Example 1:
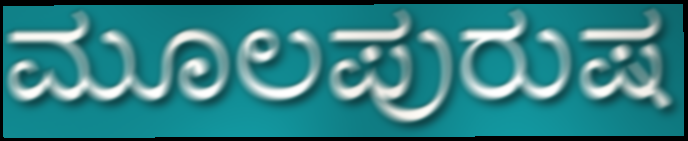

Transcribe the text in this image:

ಮೂಲಪುರುಷ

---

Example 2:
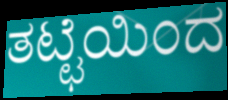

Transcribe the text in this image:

ತಟ್ಟೆಯಿಂದ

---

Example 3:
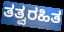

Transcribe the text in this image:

ತತ್ವರಹಿತ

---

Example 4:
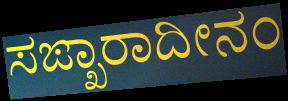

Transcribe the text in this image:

ಸಙ್ಖಾರಾದೀನಂ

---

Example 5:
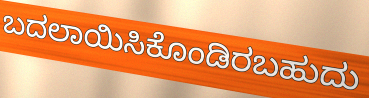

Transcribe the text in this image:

ಬದಲಾಯಿಸಿಕೊಂಡಿರಬಹುದು